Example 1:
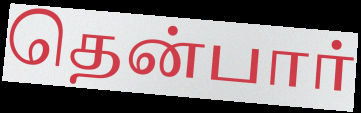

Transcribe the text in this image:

தென்பார்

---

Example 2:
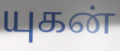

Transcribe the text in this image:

யுகன்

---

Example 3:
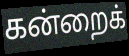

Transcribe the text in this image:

கன்றைக்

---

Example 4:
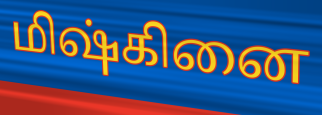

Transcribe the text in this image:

மிஷ்கினை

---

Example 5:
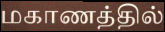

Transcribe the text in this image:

மகாணத்தில்